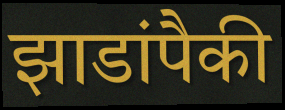
झाडांपैकी